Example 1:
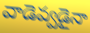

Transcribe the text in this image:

వాడెవ్వడైనా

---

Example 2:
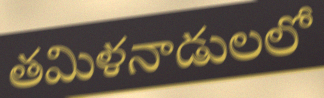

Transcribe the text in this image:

తమిళనాడులలో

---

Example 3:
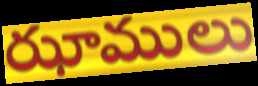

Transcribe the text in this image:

ఝాములు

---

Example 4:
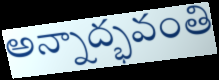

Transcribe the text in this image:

అన్నాద్భవంతి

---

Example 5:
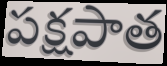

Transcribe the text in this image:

పక్షపాత